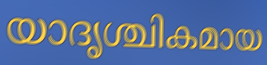
യാദൃശ്ചികമായ